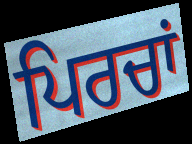
ਪਿਰਚਾਂ